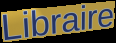
Libraire